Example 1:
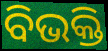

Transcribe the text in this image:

ବିଭକ୍ତି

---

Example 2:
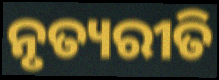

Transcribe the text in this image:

ନୃତ୍ୟରୀତି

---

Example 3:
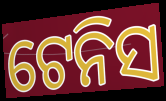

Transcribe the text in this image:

ଟେନିସ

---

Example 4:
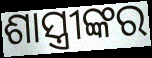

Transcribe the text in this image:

ଶାସ୍ତ୍ରୀଙ୍କର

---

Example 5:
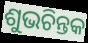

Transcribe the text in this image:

ଶୁଭଚିନ୍ତକ